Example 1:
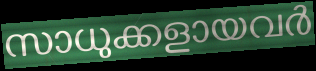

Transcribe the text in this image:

സാധുക്കളായവർ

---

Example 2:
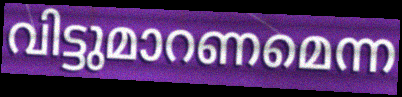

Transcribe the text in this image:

വിട്ടുമാറണമെന്ന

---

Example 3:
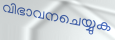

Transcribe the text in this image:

വിഭാവനചെയ്യുക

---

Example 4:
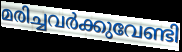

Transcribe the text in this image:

മരിച്ചവർക്കുവേണ്ടി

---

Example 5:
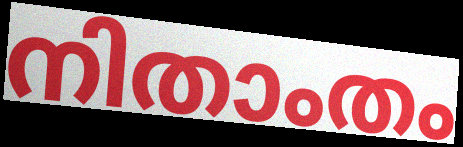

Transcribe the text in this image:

നിതാംതം